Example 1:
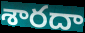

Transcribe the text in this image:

శారదా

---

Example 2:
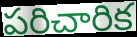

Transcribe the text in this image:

పరిచారిక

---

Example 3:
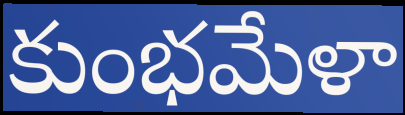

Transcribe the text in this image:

కుంభమేళా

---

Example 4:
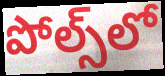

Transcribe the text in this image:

పోల్స్‌లో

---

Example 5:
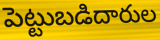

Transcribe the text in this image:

పెట్టుబడిదారుల